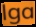
Iga